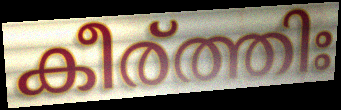
കീര്ത്തിഃ